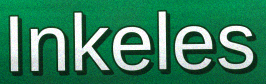
Inkeles